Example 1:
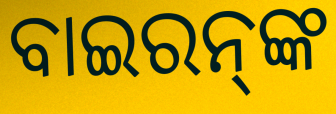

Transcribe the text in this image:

ବାଇରନ୍‌ଙ୍କ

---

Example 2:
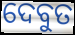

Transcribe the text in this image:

ଦେବୁତ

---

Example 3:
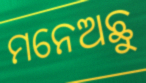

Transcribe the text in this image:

ମନେଅଛୁ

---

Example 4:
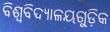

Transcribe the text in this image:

ବିଶ୍ଵବିଦ୍ୟାଳୟଗୁଡ଼ିକ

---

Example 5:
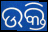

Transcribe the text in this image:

ଉକ୍ତି